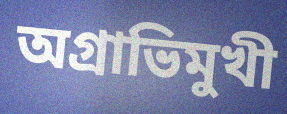
অগ্রাভিমুখী